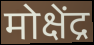
मोक्षेंद्र